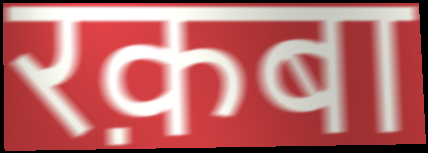
रक़बा